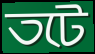
তটে